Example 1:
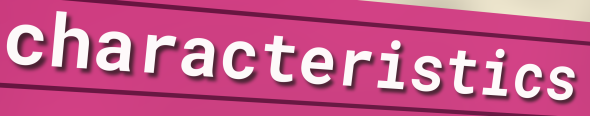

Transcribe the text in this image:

characteristics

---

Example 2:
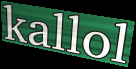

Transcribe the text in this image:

kallol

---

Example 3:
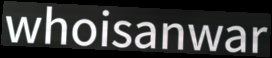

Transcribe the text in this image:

whoisanwar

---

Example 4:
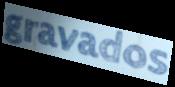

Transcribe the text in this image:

gravados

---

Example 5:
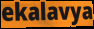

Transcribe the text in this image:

ekalavya